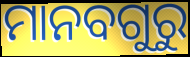
ମାନବଗୁରୁ